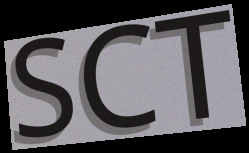
SCT